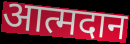
आत्मदान